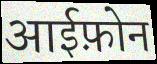
आईफ़ोन